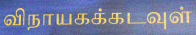
விநாயகக்கடவுள்